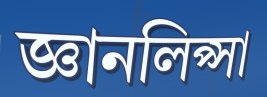
জ্ঞানলিপ্সা